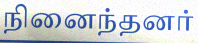
நினைந்தனர்